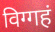
विग्गहं